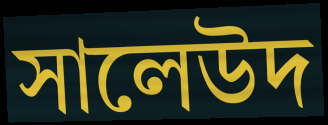
সালেউদ